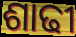
ଶାଢୀ